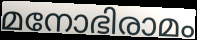
മനോഭിരാമം